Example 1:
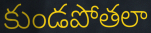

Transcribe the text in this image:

కుండపోతలా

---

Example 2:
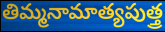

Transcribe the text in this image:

తిమ్మనామాత్యపుత్త్ర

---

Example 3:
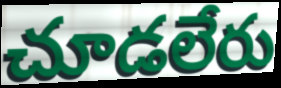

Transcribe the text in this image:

చూడలేరు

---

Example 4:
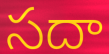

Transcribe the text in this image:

సదా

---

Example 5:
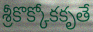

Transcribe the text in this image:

శ్రీకొక్కోకకృతే